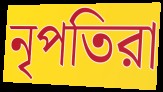
নৃপতিরা